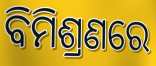
ବିମିଶ୍ରଣରେ